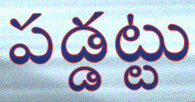
పడ్డట్టు